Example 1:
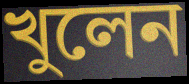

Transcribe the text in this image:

খুলেন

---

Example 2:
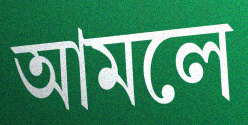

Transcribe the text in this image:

আমলে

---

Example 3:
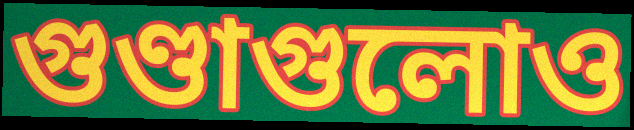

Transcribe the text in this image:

গুণ্ডাগুলোও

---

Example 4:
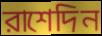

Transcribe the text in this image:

রাশেদিন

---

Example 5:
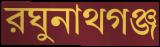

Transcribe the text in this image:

রঘুনাথগঞ্জ